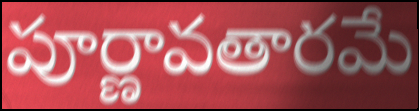
పూర్ణావతారమే